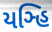
યઞ્હિ